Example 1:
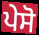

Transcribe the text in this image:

ਪੇਸੋ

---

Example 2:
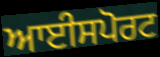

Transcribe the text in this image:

ਆਈਸਪੋਰਟ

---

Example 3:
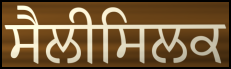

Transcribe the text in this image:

ਸੈਲੀਸਿਲਕ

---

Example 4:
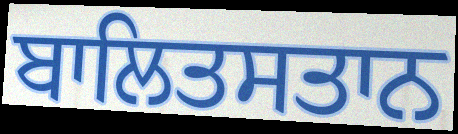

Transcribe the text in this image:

ਬਾਲਿਤਸਤਾਨ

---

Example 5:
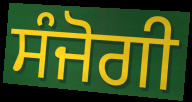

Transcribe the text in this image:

ਸੰਜੋਗੀ